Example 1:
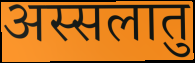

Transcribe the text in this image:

अस्सलातु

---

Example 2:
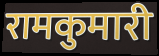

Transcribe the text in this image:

रामकुमारी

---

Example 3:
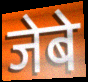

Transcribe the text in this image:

जेबे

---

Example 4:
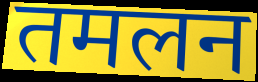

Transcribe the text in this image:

तमलन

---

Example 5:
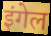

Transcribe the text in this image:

इंगेल